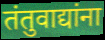
तंतुवाद्यांना